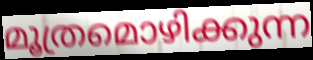
മൂത്രമൊഴിക്കുന്ന